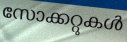
സോക്കറ്റുകൾ